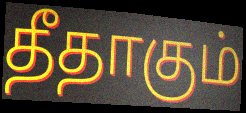
தீதாகும்